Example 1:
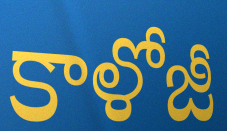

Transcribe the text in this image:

కాళోజీ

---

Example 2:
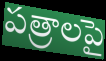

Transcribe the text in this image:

పత్రాలపై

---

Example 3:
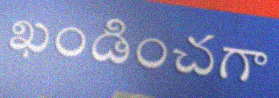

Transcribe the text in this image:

ఖండించగా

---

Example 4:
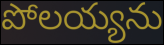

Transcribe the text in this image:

పోలయ్యను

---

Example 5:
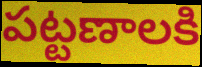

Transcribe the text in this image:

పట్టణాలకి